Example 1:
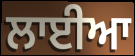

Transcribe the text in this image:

ਲਾਈਆ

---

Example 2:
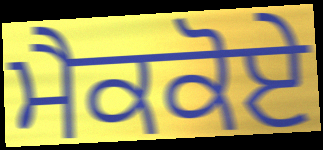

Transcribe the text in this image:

ਮੈਕਕੋਏ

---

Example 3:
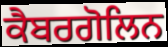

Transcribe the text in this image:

ਕੈਬਰਗੋਲਿਨ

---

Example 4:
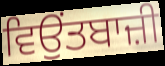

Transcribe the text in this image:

ਵਿਉਂਤਬਾਜ਼ੀ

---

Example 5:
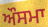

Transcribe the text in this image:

ਔਸਮਾ